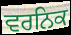
ਵਰਨਿਕ